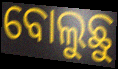
ବୋଲୁଛୁ